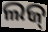
ଲଜ୍